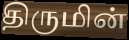
திருமின்